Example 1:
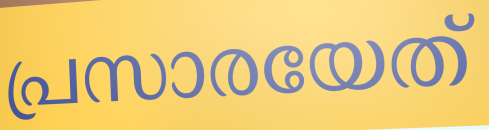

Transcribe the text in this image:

പ്രസാരയേത്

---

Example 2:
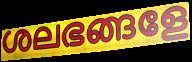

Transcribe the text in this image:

ശലഭങ്ങളേ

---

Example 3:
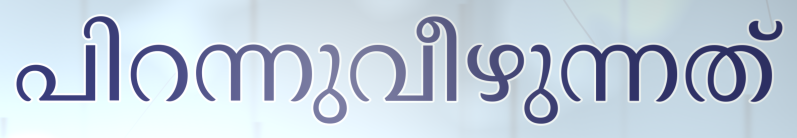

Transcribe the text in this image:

പിറന്നുവീഴുന്നത്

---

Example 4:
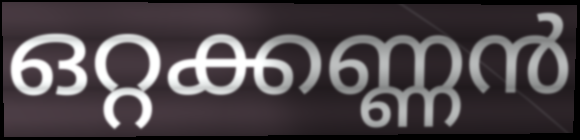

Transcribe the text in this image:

ഒറ്റക്കണ്ണൻ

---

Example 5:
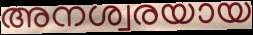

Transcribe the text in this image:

അനശ്വരയായ